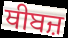
ਥੀਬਜ਼